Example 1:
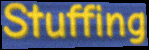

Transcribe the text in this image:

Stuffing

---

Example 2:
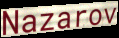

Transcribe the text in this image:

Nazarov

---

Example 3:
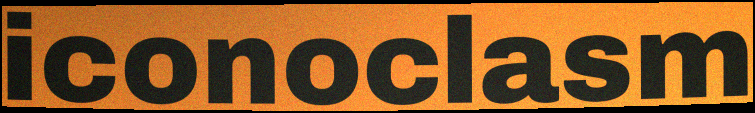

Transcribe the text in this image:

iconoclasm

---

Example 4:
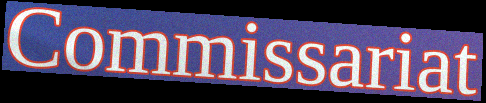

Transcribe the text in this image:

Commissariat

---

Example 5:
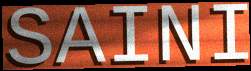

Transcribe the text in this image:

SAINI